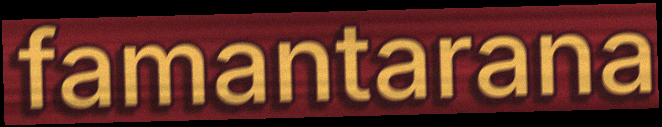
famantarana